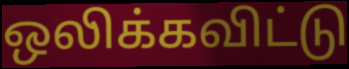
ஒலிக்கவிட்டு